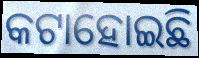
କଟାହୋଇଛି